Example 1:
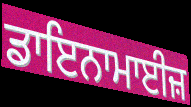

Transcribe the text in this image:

ਡਾਇਨਾਮਾਈਜ਼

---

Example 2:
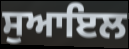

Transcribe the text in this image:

ਸੁਆਇਲ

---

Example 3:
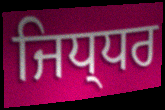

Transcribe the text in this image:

ਜਿਧ੍ਧਰ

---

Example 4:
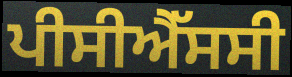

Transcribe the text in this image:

ਪੀਸੀਐੱਸਸੀ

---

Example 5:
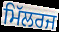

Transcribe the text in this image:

ਮਿੱਲਰਜ